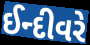
ઈન્દીવરે